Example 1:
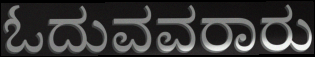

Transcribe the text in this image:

ಓದುವವರಾರು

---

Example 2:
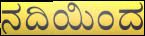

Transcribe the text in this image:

ನದಿಯಿಂದ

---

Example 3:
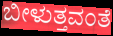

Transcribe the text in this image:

ಬೀಳುತ್ತವಂತೆ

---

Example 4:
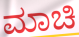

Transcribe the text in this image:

ಮಾಚಿ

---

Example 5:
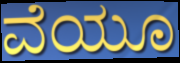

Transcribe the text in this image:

ವೆಯೂ